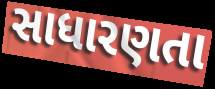
સાધારણતા